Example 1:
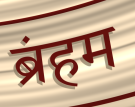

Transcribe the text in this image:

ब्रंहम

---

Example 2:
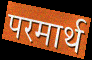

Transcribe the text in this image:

परमार्थ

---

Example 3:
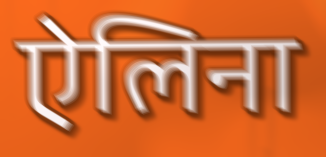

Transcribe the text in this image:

ऐलिना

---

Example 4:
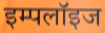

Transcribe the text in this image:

इम्पलॉइज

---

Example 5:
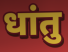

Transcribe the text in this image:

धांतु